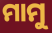
ମାମୁ